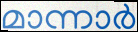
മാന്നാർ